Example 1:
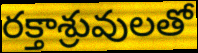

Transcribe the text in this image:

రక్తాశ్రువులతో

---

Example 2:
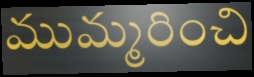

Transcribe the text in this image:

ముమ్మరించి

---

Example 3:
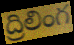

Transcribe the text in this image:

ద్రిలింగ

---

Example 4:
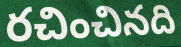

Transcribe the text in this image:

రచించినది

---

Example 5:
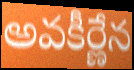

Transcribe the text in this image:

అవకీర్ణేన